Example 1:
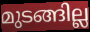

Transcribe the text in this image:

മുടങ്ങില്ല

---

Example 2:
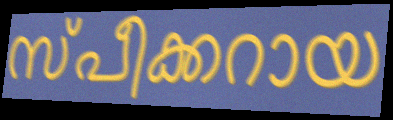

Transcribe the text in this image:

സ്പീക്കറായ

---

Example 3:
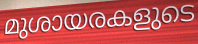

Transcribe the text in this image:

മുശായരകളുടെ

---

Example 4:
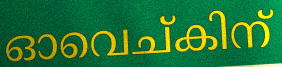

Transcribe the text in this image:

ഓവെച്കിന്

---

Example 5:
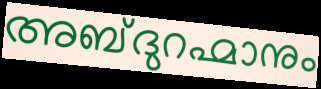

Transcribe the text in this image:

അബ്ദുറഹ്മാനും